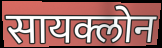
सायक्लोन